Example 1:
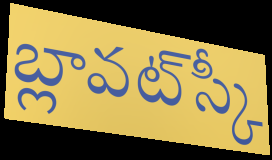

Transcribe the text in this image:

బ్లావట్‌స్కీ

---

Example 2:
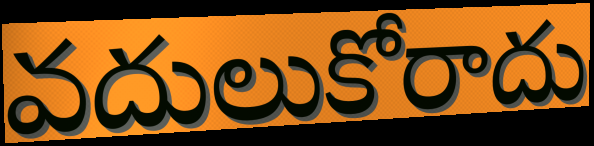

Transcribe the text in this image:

వదులుకోరాదు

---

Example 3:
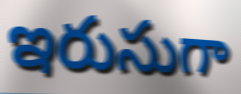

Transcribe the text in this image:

ఇరుసుగా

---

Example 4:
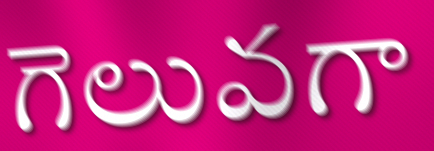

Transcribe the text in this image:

గెలువగా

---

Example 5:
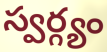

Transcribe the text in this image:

స్వర్గ్యం